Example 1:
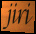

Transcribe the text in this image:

jiri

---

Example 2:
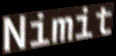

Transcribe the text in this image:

Nimit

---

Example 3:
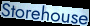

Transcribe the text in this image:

Storehouse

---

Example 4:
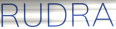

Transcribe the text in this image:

RUDRA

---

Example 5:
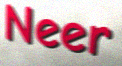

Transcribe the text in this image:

Neer